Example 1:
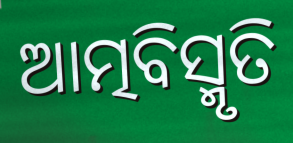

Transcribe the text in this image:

ଆତ୍ମବିସ୍ମୃତି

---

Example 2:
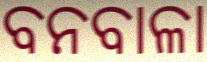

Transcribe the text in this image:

ବନବାଳା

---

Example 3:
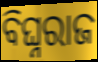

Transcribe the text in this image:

ବିଘ୍ନରାଜ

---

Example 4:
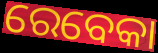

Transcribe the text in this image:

ରେବେକା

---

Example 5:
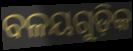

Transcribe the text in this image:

ବଳୟଗୁଡ଼ିକ